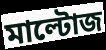
মাল্টোজ